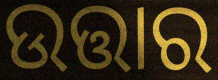
ଉତ୍ତାର